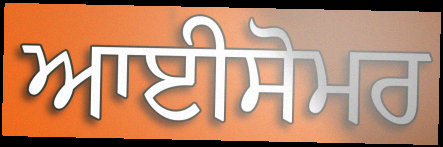
ਆਈਸੋਮਰ